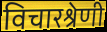
विचारश्रेणी